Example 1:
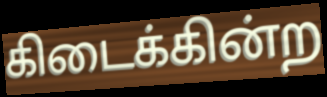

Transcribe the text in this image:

கிடைக்கின்ற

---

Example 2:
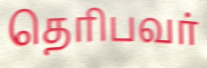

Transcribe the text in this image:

தெரிபவர்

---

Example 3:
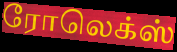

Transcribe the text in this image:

ரோலெக்ஸ்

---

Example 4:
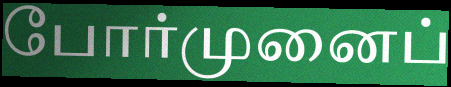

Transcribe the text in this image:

போர்முனைப்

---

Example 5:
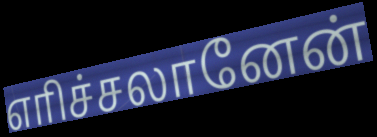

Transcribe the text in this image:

எரிச்சலானேன்